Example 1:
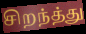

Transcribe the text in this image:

சிறந்த்து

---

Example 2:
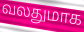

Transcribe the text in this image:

வலதுமாக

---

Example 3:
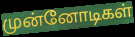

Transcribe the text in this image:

முன்னோடிகள்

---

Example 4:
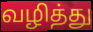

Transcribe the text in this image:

வழித்து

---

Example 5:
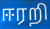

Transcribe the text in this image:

ஈரறி